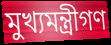
মুখ্যমন্ত্রীগণ